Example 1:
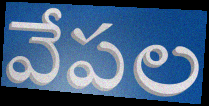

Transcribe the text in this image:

వేపల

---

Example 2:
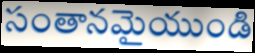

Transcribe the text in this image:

సంతానమైయుండి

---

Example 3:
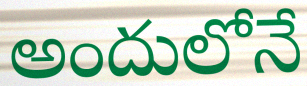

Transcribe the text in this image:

అందులోనే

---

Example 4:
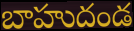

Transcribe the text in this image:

బాహుదండ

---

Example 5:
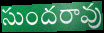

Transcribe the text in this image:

సుందరావు